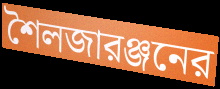
শৈলজারঞ্জনের